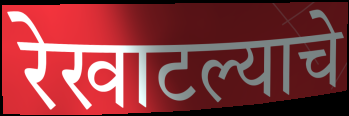
रेखाटल्याचे